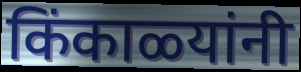
किंकाळ्यांनी